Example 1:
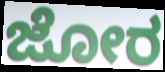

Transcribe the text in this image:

ಜೋರ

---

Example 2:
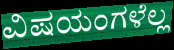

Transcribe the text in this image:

ವಿಷಯಂಗಳೆಲ್ಲ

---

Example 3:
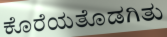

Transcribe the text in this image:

ಕೊರೆಯತೊಡಗಿತು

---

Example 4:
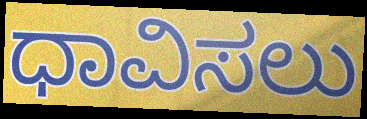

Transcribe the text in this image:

ಧಾವಿಸಲು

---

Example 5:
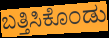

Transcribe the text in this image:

ಬತ್ತಿಸಿಕೊಂಡು